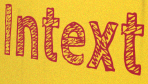
Intext